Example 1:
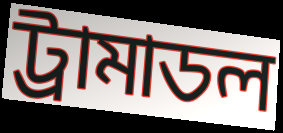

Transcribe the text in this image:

ট্রামাডল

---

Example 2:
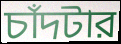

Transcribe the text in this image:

চাঁদটার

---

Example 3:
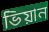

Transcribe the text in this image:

ভিয়ান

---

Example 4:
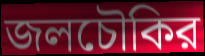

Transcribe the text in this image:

জলচৌকির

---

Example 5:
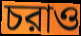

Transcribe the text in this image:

চরাও